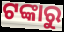
ଟଙ୍କାରୁ